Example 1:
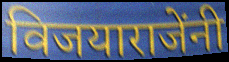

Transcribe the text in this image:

विजयाराजेंनी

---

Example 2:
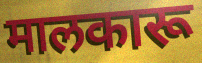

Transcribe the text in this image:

मालकारू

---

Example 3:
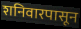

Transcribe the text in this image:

शनिवारपासून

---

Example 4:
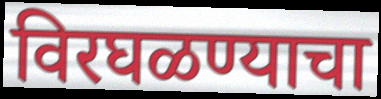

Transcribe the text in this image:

विरघळण्याचा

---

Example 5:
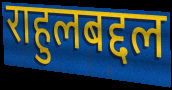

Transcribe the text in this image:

राहुलबद्दल